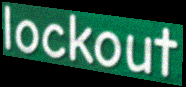
lockout